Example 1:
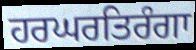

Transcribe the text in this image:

ਹਰਘਰਤਿਰੰਗਾ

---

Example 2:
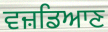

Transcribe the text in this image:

ਵਜ਼ਡਿਆਣ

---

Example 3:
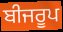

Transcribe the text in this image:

ਬੀਜਰੂਪ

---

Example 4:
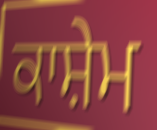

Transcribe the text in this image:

ਕਾਸ਼ੇਮ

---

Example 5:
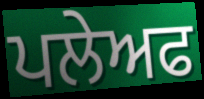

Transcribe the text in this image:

ਪਲੇਅਫ